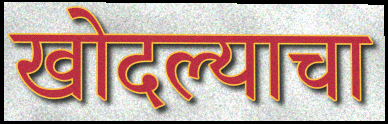
खोदल्याचा